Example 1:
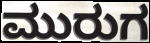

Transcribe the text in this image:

ಮುರುಗ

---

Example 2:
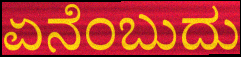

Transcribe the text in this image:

ಏನೆಂಬುದು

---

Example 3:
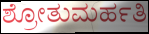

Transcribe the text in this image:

ಶ್ರೋತುಮರ್ಹತಿ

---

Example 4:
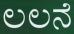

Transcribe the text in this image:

ಲಲನೆ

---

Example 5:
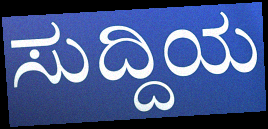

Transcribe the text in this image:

ಸುದ್ದಿಯ